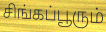
சிங்கப்பூரும்